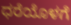
ಧರೆಯೊಳಗೆ